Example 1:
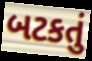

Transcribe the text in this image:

બટકતું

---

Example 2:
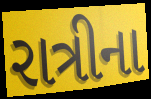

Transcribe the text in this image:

રાત્રીના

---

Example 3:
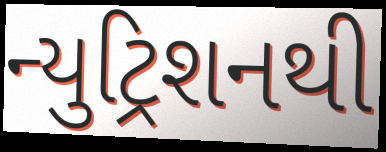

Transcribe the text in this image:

ન્યુટ્રિશનથી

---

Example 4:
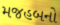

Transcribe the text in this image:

મજહબનો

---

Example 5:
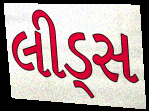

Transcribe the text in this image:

લીડ્સ